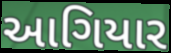
આગિયાર